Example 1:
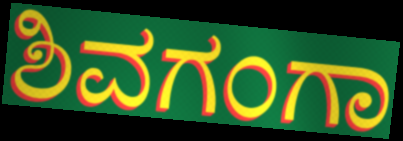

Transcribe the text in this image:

ಶಿವಗಂಗಾ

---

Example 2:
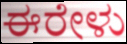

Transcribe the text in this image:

ಈರೇಳು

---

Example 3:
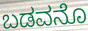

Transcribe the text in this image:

ಬಡವನೊ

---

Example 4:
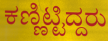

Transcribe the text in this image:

ಕಣ್ಣಿಟ್ಟಿದ್ದರು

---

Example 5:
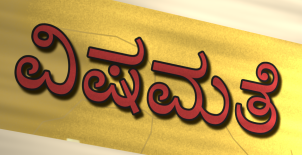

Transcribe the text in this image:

ವಿಷಮತೆ